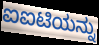
ಐಐಟಿಯನ್ನು